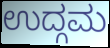
ಉದ್ಗಮ